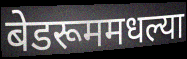
बेडरूममधल्या